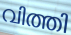
വിത്തി